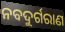
ନବଦୁର୍ଗରାଣ